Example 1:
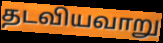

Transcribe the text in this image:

தடவியவாறு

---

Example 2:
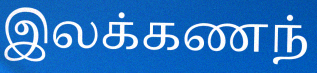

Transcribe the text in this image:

இலக்கணந்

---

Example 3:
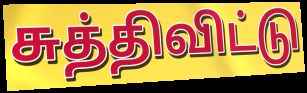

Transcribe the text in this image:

சுத்திவிட்டு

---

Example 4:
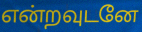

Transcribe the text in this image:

என்றவுடனே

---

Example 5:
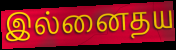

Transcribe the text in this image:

இல்னைதய